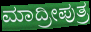
ಮಾದ್ರೀಪುತ್ರ